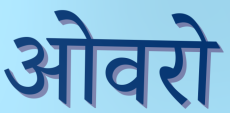
ओवरो